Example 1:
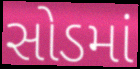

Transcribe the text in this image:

સોડમાં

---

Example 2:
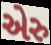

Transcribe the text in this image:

એરુ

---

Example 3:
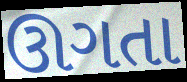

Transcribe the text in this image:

ઊગતા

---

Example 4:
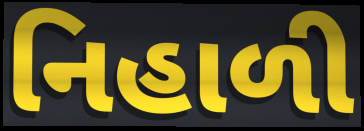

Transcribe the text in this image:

નિહાળી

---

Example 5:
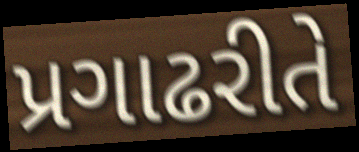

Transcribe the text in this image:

પ્રગાઢરીતે